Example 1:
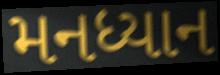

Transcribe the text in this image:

મનધ્યાન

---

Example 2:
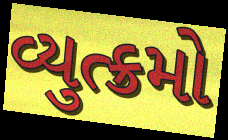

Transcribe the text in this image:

વ્યુત્ક્રમો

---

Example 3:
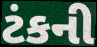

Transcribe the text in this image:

ટંકની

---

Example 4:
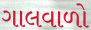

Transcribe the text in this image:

ગાલવાળો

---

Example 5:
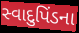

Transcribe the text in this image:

સ્વાદુપિંડના